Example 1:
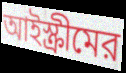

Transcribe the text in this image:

আইস্ক্রীমের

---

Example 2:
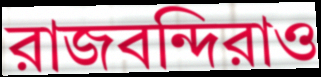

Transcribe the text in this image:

রাজবন্দিরাও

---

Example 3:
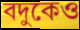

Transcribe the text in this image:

বদুকেও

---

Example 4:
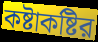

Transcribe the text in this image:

কষ্টাকষ্টির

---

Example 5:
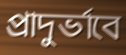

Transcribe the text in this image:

প্রাদুর্ভাবে